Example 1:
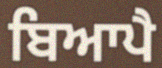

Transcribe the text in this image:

ਬਿਆਪੈ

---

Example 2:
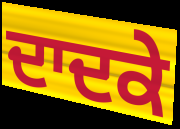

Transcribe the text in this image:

ਦਾਦਕੇ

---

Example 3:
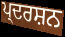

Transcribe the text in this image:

ਪ੍ਦਰਸ਼ਨ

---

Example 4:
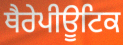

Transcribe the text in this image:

ਥੈਰੇਪੀਊਟਿਕ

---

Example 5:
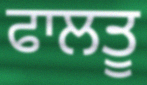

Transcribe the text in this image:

ਫਾਲਤੂ